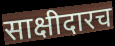
साक्षीदारच